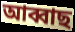
আব্বাছ